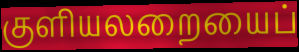
குளியலறையைப்